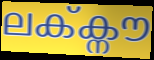
ലക്ക്നൗ